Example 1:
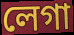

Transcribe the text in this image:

লেগা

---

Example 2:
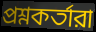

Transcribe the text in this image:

প্রশ্নকর্তারা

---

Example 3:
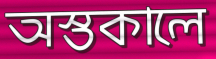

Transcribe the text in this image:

অস্তকালে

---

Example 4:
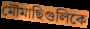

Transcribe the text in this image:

মৌমাছিগুলিকে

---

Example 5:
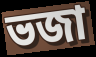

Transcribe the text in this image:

ভজা